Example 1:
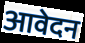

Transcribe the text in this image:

आवेदन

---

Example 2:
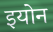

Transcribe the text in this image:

इयोन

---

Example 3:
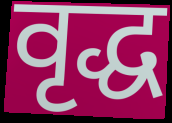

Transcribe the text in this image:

वृद्ध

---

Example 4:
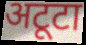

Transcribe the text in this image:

अटूटा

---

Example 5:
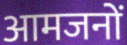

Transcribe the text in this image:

आमजनों